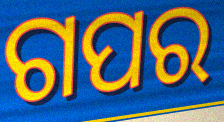
ଗପର